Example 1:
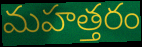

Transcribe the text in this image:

మహత్తరం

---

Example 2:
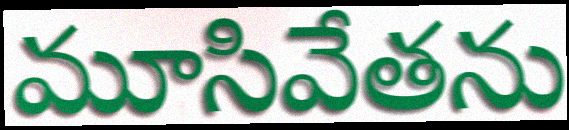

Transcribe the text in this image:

మూసివేతను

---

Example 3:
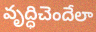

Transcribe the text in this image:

వృద్ధిచెందేలా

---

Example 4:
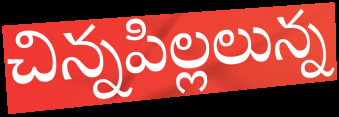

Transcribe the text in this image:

చిన్నపిల్లలున్న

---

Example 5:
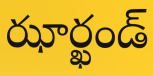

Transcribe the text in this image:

ఝార్ఖండ్